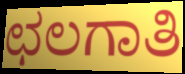
ಛಲಗಾತಿ